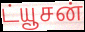
ட்யூசன்